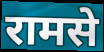
रामसे